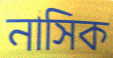
নাসিক